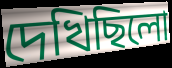
দেখিছিলো